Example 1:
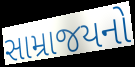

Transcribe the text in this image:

સામ્રાજયનો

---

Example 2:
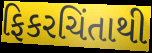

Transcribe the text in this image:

ફિકરચિંતાથી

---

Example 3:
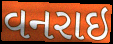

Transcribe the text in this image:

વનરાઇ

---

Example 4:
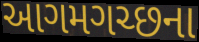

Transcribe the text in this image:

આગમગચ્છના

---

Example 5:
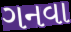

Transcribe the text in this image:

ગનવા